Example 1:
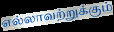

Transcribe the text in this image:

எல்லாவற்றுக்கும்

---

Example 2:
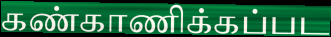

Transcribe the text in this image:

கண்காணிக்கப்பட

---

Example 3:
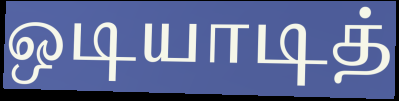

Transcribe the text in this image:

ஒடியாடித்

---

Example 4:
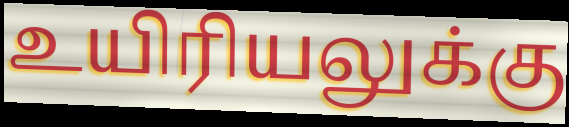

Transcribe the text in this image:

உயிரியலுக்கு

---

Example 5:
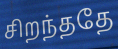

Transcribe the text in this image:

சிறந்ததே